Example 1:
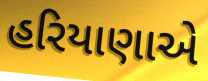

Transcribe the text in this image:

હરિયાણાએ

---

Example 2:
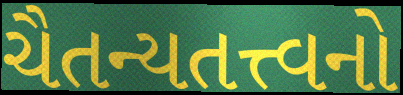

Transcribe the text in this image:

ચૈતન્યતત્ત્વનો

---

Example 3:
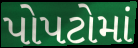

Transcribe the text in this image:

પોપટોમાં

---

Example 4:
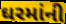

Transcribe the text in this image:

ઘરમાંની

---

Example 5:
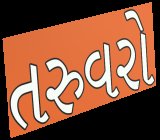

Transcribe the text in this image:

તરુવરો